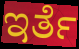
ಇರ್ತೆ